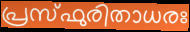
പ്രസ്ഫുരിതാധരഃ